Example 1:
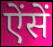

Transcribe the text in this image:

ऐंसें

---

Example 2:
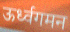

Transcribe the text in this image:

ऊर्ध्वगमन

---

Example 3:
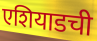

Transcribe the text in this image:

एशियाडची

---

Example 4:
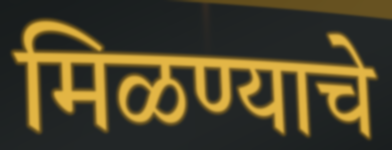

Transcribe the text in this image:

मिळण्याचे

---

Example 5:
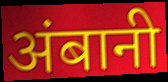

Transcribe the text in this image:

अंबानी